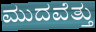
ಮುದವೆತ್ತು